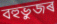
বহুভুজৰ